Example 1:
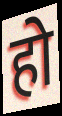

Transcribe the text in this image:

हो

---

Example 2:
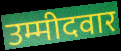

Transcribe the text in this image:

उम्‍मीदवार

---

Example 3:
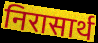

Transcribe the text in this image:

निरासार्थ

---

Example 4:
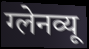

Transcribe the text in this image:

ग्लेनव्यू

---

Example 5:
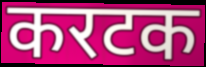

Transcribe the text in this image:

करटक